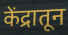
केंद्रातून